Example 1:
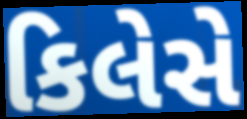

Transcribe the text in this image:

કિલેસે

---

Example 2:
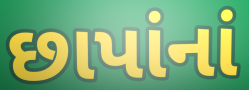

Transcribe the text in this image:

છાપાંનાં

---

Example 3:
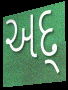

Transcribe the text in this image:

અદ્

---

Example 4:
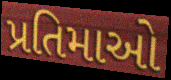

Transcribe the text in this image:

પ્રતિમાઓ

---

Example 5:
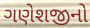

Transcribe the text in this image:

ગણેશજીનો